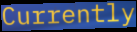
Currently